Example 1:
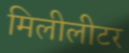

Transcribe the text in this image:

मिलीलीटर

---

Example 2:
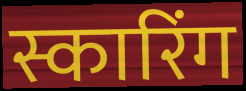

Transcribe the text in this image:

स्कारिंग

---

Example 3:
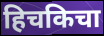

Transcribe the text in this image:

हिचकिचा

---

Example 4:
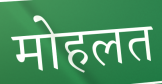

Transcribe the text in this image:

मोहलत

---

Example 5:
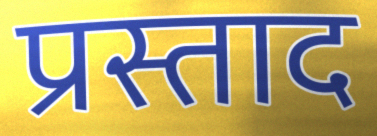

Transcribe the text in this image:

प्रस्ताद